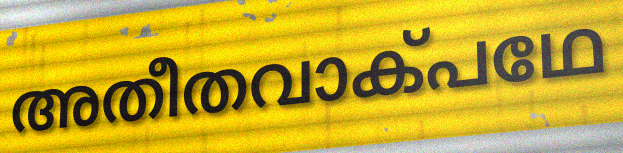
അതീതവാക്പഥേ